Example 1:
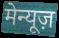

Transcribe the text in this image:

मेन्यूज़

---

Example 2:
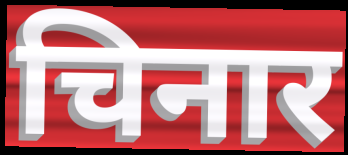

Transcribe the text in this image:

चिनार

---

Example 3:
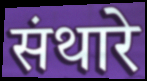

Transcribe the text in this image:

संथारे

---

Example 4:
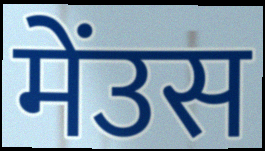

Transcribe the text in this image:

मेंउस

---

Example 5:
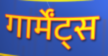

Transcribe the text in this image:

गार्मेंट्स